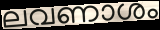
ലവണാശം